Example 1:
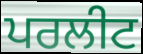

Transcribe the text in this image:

ਪਰਲੀਟ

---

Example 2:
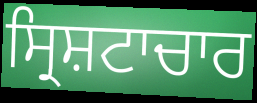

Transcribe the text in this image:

ਸ੍ਰਿਸ਼ਟਾਚਾਰ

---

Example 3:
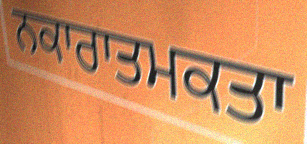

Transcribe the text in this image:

ਨਕਾਰਾਤਮਕਤਾ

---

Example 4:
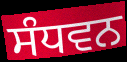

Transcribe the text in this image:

ਸੰਧਵਨ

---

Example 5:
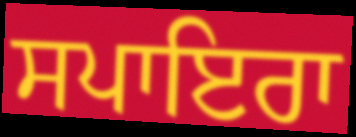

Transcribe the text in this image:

ਸਪਾਇਰਾ